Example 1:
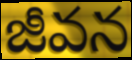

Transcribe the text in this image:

జీవన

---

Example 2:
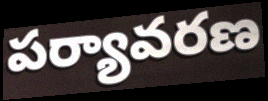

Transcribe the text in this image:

పర్యావరణ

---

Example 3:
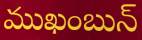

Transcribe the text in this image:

ముఖంబున్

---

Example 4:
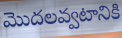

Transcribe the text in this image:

మొదలవ్వటానికి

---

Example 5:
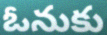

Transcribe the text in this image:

ఓనుకు